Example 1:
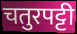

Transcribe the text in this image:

चतुरपट्टी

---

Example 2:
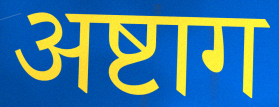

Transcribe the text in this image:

अष्टाग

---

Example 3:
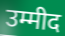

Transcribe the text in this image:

उम्‍मीद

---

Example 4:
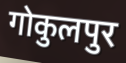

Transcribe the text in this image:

गोकुलपुर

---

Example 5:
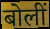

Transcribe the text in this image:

बोलीं